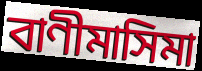
বাণীমাসিমা